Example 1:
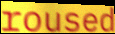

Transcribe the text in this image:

roused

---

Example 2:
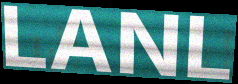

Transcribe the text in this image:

LANL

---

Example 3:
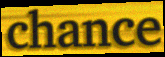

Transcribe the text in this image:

chance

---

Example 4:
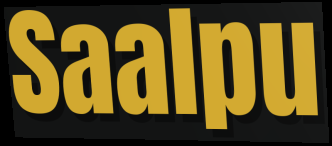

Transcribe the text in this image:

Saalpu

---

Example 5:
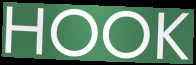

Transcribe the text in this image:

HOOK